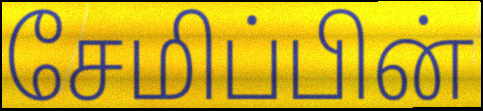
சேமிப்பின்